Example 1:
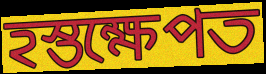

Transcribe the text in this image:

হস্তক্ষেপত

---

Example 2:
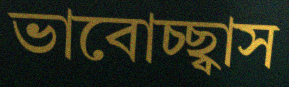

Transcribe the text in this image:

ভাবোচ্ছ্বাস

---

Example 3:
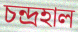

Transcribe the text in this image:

চন্দ্ৰহাল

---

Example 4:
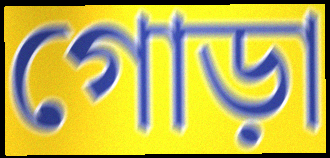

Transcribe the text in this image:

গোড়া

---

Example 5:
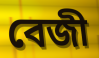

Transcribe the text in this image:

বেজী